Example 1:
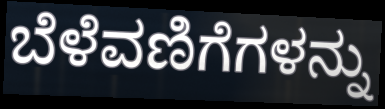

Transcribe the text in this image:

ಬೆಳೆವಣಿಗೆಗಳನ್ನು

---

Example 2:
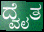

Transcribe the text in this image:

ದ್ವೈತ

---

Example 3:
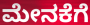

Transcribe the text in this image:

ಮೇನಕೆಗೆ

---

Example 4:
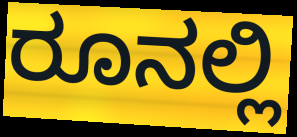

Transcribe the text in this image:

ರೂನಲ್ಲಿ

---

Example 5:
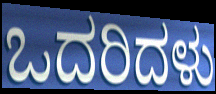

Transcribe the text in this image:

ಒದರಿದಳು